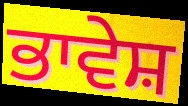
ਭਾਵੇਸ਼